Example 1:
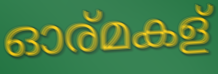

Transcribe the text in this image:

ഓര്മകള്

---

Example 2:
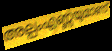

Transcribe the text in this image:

അല്പംഎണ്ണയുമാണ്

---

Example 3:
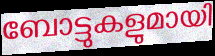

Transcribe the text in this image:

ബോട്ടുകളുമായി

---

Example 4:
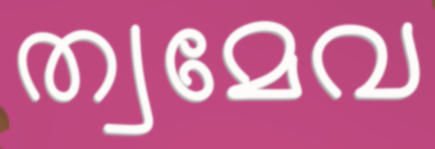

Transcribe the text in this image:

ത്വമേവ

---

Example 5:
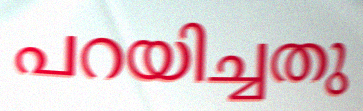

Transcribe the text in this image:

പറയിച്ചതു